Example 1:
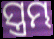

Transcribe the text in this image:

ସ୍ତ୍ରମ୍ଭ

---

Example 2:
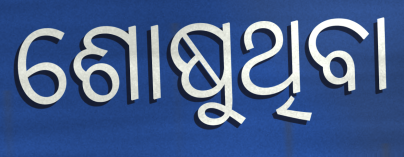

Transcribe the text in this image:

ଶୋଷୁଥିବା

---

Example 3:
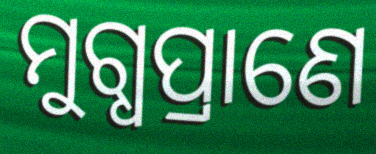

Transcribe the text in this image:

ମୁଗ୍ଧପ୍ରାଣେ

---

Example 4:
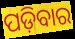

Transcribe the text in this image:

ପଡ଼ିବାର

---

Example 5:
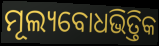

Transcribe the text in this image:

ମୂଲ୍ୟବୋଧଭିତ୍ତିକ